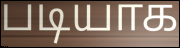
படியாக